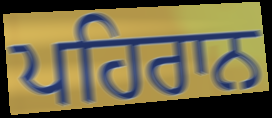
ਪਹਿਰਾਨ